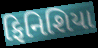
ફિનિશિયા